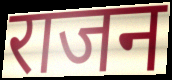
राजन